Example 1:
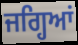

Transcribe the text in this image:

ਜਗ੍ਹਿਆਂ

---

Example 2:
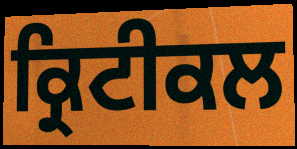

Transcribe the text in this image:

ਕ੍ਰਿਟੀਕਲ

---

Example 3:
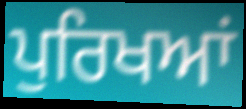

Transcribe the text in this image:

ਪੁਰਿਖਆਂ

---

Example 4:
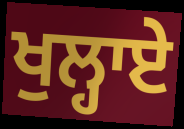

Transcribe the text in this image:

ਖੁਲ੍ਹਾਏ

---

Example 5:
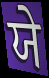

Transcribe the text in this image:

ਯੇ